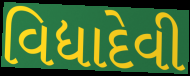
વિદ્યાદેવી